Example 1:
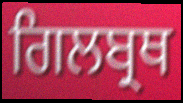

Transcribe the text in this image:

ਗਿਲਬ੍ਰਥ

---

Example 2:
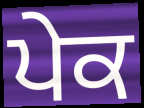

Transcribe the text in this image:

ਪੇਕ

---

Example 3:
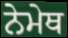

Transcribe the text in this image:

ਨੇਮੇਥ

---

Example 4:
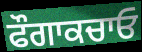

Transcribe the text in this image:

ਫੌਗਾਕਚਾਓ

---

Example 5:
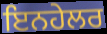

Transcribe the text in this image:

ਇਨਹੇਲਰ